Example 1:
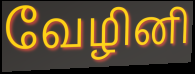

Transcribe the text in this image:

வேழினி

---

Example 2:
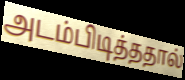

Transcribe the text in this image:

அடம்பிடித்ததால்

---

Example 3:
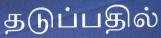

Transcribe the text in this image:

தடுப்பதில்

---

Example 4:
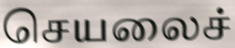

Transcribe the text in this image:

செயலைச்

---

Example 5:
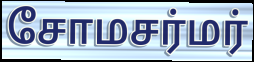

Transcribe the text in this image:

சோமசர்மர்